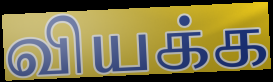
வியக்க